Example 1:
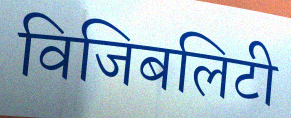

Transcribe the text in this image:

विजिबलिटी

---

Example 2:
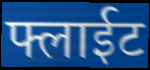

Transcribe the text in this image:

फ्लाईट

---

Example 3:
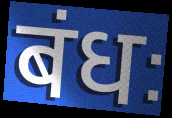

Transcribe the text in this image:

बंधः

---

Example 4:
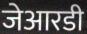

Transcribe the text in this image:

जेआरडी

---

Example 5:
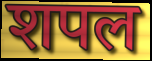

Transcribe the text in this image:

शपल